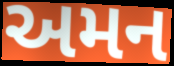
અમન